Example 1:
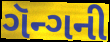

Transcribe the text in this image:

ગૅન્ગની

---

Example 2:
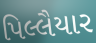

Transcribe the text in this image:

પિલ્લૈયાર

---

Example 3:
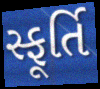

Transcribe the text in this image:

સ્ફૂર્તિ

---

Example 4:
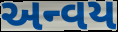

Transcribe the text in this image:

અન્વય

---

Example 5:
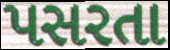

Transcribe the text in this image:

પસરતા